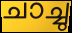
ചാച്ചു